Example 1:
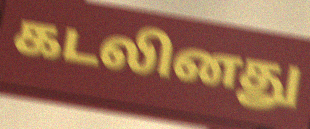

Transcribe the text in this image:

கடலினது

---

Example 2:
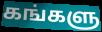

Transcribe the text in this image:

கங்களு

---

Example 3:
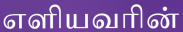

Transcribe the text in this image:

எளியவரின்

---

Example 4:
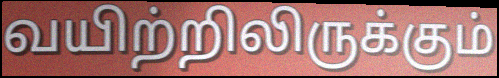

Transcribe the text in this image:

வயிற்றிலிருக்கும்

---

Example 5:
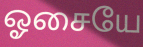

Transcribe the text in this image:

ஓசையே